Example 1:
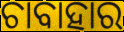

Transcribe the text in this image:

ଚାବାହାର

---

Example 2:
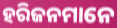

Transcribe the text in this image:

ହରିଜନମାନେ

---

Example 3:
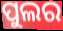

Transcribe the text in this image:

ପୁଲର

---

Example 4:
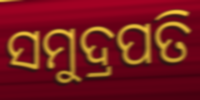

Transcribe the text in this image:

ସମୁଦ୍ରପତି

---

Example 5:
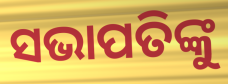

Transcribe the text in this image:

ସଭାପତିଙ୍କୁ